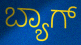
ಬ್ಯಾಗ್